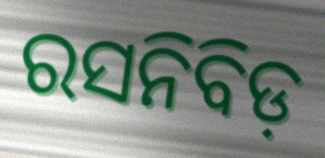
ରସନିବିଡ଼